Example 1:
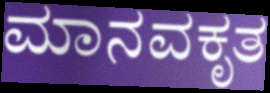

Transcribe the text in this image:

ಮಾನವಕೃತ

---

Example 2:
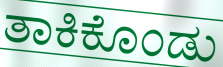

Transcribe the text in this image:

ತಾಕಿಕೊಂಡು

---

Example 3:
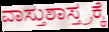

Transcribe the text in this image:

ವಾಸ್ತುಶಾಸ್ತ್ರಕ್ಕೆ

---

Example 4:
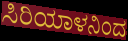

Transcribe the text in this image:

ಸಿರಿಯಾಳನಿಂದ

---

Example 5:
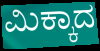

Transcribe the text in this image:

ಮಿಕ್ಕಾದ